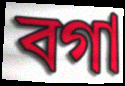
বগা